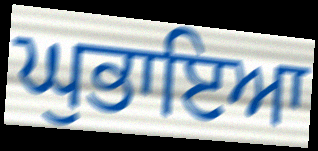
ਘੁਭਾਇਆ